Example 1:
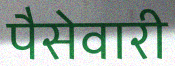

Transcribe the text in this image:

पैसेवारी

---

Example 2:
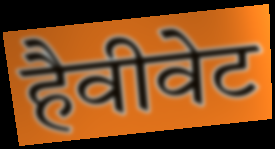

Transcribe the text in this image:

हैवीवेट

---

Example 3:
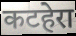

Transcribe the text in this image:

कटहेरा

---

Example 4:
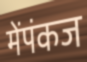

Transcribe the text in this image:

मेंपंकज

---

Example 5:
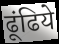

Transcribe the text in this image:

ढूंढिये